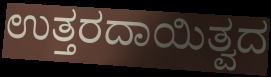
ಉತ್ತರದಾಯಿತ್ವದ